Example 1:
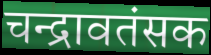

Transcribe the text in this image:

चन्द्रावतंसक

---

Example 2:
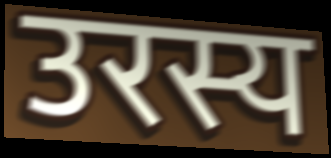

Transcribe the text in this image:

उरस्य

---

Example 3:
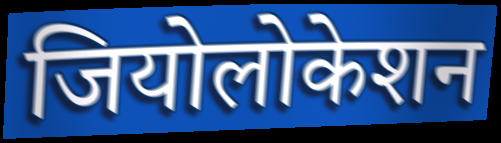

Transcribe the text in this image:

जियोलोकेशन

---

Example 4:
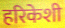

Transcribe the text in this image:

हरिकेशी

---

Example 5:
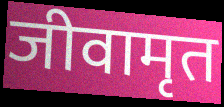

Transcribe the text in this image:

जीवामृत